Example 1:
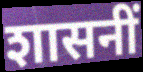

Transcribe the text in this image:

शासनीं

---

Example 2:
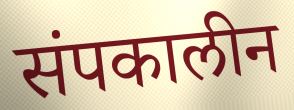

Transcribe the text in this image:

संपकालीन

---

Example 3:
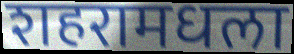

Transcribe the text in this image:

शहरामधला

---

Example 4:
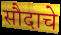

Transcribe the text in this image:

सौदाचे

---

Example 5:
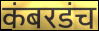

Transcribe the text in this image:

कंबरडंच